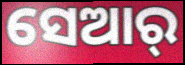
ସେଆର୍